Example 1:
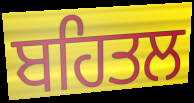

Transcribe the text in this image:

ਬਹਿਤਲ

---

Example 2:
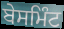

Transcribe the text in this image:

ਬੇਸਮਿੰਟ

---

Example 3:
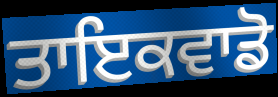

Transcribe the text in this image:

ਤਾਇਕਵਾਡੋ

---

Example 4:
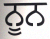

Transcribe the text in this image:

ਨੂਨ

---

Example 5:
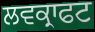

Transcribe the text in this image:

ਲਵਕ੍ਰਾਫਟ